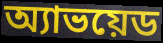
অ্যাভয়েড